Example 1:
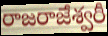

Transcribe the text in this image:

రాజరాజేశ్వరీ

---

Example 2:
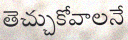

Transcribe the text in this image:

తెచ్చుకోవాలనే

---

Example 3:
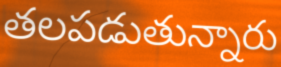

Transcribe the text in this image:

తలపడుతున్నారు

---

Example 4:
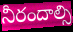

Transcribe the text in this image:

నీరందాల్సి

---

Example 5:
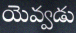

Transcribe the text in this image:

యెవ్వడు